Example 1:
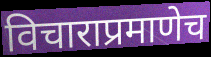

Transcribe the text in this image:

विचाराप्रमाणेच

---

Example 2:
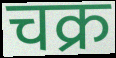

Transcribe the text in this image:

चक्र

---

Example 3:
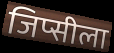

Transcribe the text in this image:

जिप्सीला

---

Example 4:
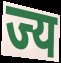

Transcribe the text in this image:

ज्य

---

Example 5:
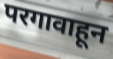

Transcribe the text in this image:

परगावाहून